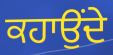
ਕਹਾਉਂਦੇ